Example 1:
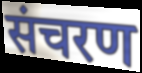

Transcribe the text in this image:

संचरण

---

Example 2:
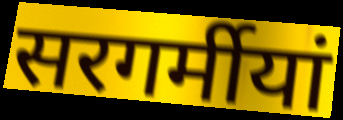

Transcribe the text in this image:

सरगर्मीयां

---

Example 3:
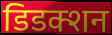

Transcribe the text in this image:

डिडक्शन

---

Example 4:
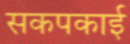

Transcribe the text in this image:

सकपकाई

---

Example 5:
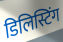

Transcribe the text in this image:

डिलिस्टिंग